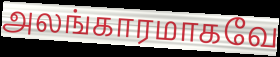
அலங்காரமாகவே